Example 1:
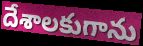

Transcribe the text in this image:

దేశాలకుగాను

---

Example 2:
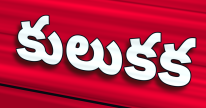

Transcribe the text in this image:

కులుకక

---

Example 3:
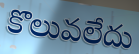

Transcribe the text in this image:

కొలువలేదు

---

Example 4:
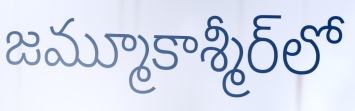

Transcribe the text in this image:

జమ్మూకాశ్మీర్‌లో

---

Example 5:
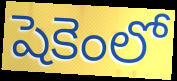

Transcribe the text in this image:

షెకెంలో